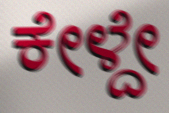
ಕೇಳ್ದೇ